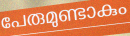
പേരുമുണ്ടാകും